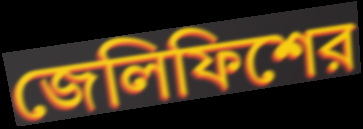
জেলিফিশের